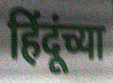
हिंदूंच्या